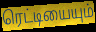
ரெட்டியையும்